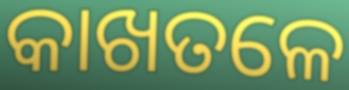
କାଖତଳେ